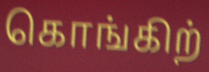
கொங்கிற்